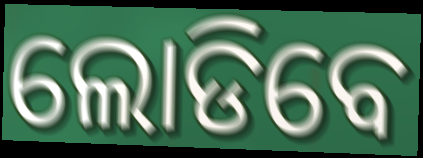
ଲୋଡିବେ